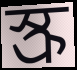
স্ক্র